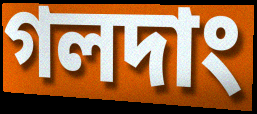
গলদাং